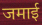
जमाई